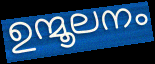
ഉന്മൂലനം